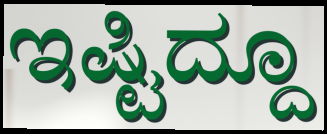
ಇಷ್ಟಿದ್ದೂ